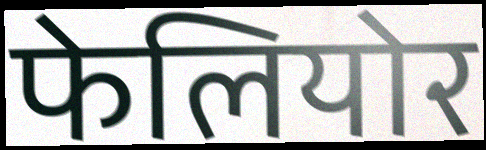
फेलियोर